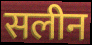
सलीन